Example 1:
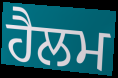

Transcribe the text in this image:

ਹੈਲਮ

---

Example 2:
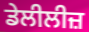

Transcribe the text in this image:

ਡੇਲੀਲੀਜ਼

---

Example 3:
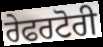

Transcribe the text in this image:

ਰੇਫਰਟੋਰੀ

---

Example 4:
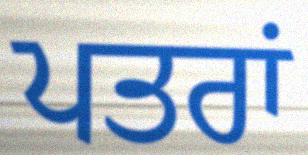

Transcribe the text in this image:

ਪਤਰਾਂ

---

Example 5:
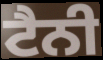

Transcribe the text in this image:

ਟੈਨੀ